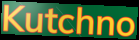
Kutchno